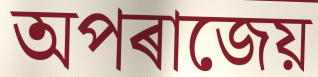
অপৰাজেয়